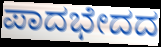
ಪಾದಭೇದದ